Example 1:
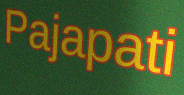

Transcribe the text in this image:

Pajapati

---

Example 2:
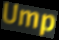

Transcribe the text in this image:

Ump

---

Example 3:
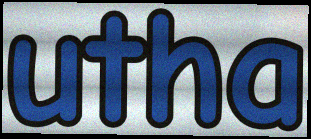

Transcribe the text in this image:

utha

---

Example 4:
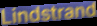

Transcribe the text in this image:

Lindstrand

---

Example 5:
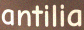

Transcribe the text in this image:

antilia